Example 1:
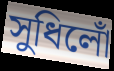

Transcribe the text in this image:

সুধিলোঁ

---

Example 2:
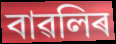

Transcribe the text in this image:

বাৱলিৰ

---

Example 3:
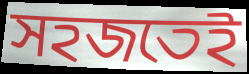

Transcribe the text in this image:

সহজতেই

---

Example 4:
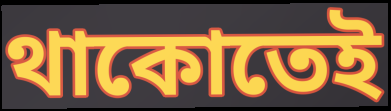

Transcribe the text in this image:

থাকোতেই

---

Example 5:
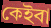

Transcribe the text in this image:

কেইবা